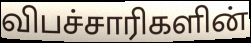
விபச்சாரிகளின்